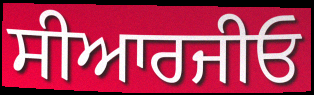
ਸੀਆਰਜੀਓ